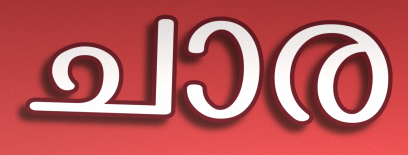
ചാര